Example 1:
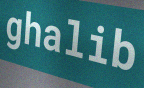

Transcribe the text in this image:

ghalib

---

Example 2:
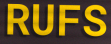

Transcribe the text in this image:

RUFS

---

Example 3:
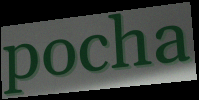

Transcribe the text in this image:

pocha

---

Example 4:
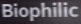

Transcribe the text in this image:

Biophilic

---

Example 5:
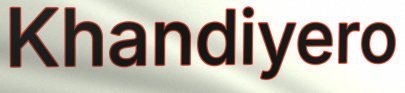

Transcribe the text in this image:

Khandiyero